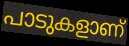
പാടുകളാണ്